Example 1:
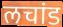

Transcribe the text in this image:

लचांड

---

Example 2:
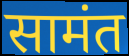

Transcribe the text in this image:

सामंत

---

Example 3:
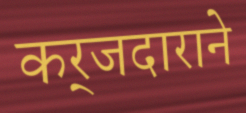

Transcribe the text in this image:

कर्जदाराने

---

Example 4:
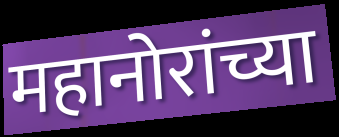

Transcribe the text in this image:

महानोरांच्या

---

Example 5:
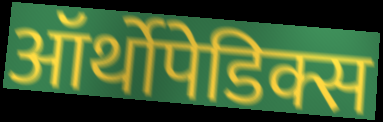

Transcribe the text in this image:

ऑर्थोपेडिक्स